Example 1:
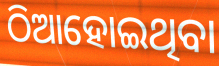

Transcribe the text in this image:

ଠିଆହୋଇଥିବା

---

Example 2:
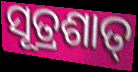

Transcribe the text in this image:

ସୂତ୍ରଶାତ୍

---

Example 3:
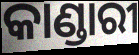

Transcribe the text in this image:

କାଣ୍ଡାରୀ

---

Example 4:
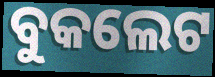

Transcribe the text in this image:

ବୁକଲେଟ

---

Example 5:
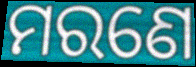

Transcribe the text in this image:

ମରଣେ